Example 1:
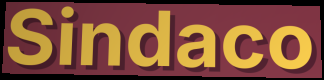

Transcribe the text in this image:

Sindaco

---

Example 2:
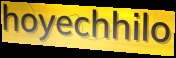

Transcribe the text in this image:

hoyechhilo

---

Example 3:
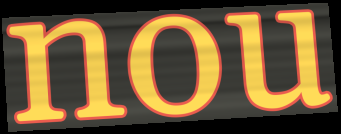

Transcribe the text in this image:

nou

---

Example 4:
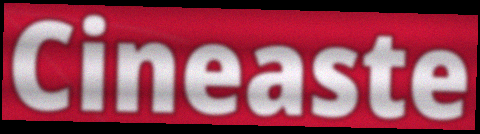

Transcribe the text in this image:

Cineaste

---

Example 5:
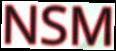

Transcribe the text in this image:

NSM